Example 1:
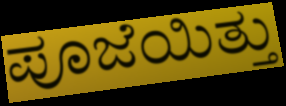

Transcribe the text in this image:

ಪೂಜೆಯಿತ್ತು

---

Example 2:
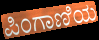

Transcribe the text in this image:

ಪಿಂಗಾಣಿಯ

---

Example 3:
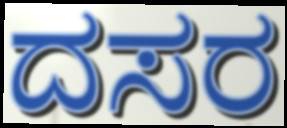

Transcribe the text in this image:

ದಸರ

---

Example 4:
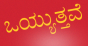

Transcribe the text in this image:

ಒಯ್ಯುತ್ತವೆ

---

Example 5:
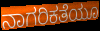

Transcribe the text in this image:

ನಾಗರಿಕತೆಯೂ